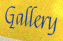
Gallery